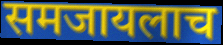
समजायलाच